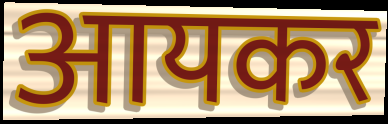
आयकर